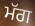
ਮੱਗ